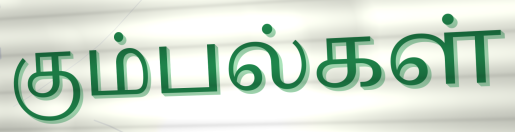
கும்பல்கள்